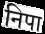
निपा